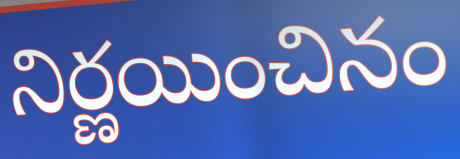
నిర్ణయించినం